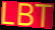
LBT